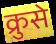
क्रुसे